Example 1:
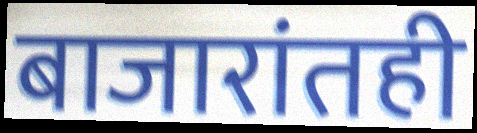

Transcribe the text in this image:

बाजारांतही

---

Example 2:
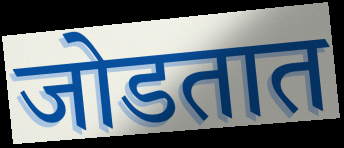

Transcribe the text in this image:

जोडतात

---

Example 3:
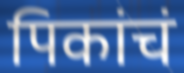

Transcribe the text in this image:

पिकांचं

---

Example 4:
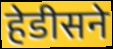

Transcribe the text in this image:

हेडीसने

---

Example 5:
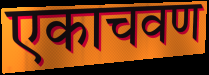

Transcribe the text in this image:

एकाचवण